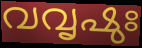
വവൃഷുഃ